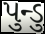
પુન્ડુ